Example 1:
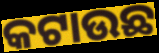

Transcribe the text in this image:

କଟାଉଛ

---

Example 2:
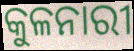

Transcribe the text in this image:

କୁଳନାରୀ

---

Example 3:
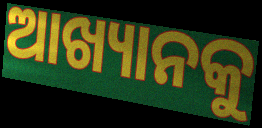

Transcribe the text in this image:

ଆଖ୍ୟାନକୁ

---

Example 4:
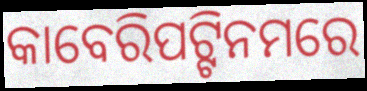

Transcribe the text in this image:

କାବେରିପଟ୍ଟିନମରେ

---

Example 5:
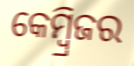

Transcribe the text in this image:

କେମ୍ୱ୍ରିଜର